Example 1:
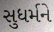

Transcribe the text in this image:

સુધર્મને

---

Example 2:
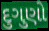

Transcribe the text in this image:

દુગુણો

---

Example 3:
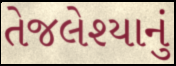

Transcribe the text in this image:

તેજલેશ્યાનું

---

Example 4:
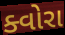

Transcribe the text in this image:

ક્વોરા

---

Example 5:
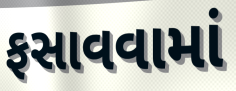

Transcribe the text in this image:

ફસાવવામાં